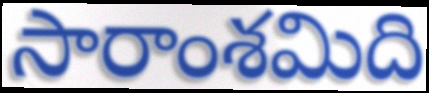
సారాంశమిది